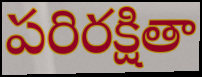
పరిరక్షితా